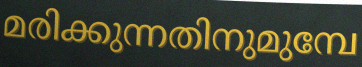
മരിക്കുന്നതിനുമുമ്പേ